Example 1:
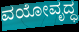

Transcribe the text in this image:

ವಯೋವೃದ್ಧ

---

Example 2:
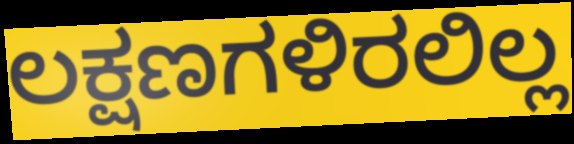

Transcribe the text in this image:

ಲಕ್ಷಣಗಳಿರಲಿಲ್ಲ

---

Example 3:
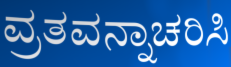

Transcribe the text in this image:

ವ್ರತವನ್ನಾಚರಿಸಿ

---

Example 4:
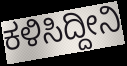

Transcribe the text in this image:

ಕಳಿಸಿದ್ದೀನಿ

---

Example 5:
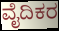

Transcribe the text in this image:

ವೈದಿಕರ